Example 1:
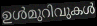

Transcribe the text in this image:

ഉൾമുറിവുകൾ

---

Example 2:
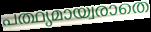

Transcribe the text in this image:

പത്ഥ്യമായ്വരാതെ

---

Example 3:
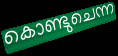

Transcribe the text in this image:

കൊണ്ടുചെന്ന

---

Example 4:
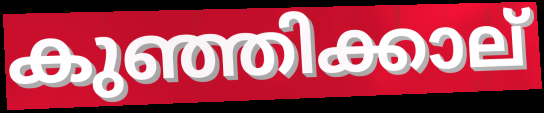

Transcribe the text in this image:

കുഞ്ഞിക്കാല്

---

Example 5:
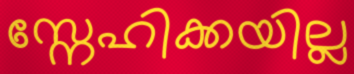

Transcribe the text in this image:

സ്നേഹിക്കയില്ല